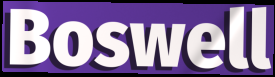
Boswell